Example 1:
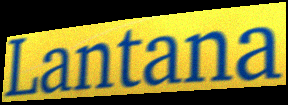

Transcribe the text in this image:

Lantana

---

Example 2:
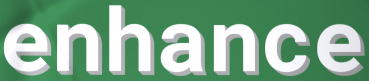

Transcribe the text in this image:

enhance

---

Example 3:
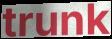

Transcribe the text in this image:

trunk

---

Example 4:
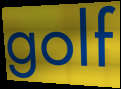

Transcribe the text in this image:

golf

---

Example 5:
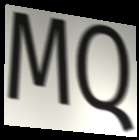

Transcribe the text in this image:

MQ